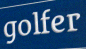
golfer